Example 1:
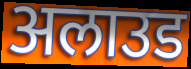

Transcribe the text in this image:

अलाउड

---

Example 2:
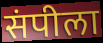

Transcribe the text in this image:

संपीला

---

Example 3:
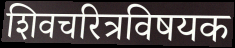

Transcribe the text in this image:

शिवचरित्रविषयक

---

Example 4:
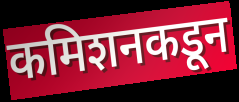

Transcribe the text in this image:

कमिशनकडून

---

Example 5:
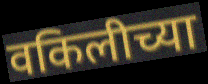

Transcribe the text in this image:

वकिलीच्या